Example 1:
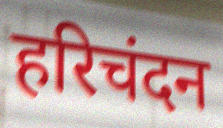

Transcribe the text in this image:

हरिचंदन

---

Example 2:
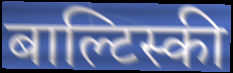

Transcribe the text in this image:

बाल्टिस्की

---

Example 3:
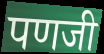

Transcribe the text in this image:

पणजी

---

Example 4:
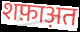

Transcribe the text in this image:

शफ़ाअ़त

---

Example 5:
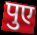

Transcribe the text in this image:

पुए